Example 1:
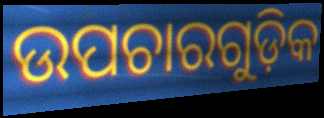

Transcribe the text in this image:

ଉପଚାରଗୁଡ଼ିକ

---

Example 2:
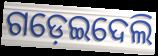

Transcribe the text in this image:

ଗଡ଼େଇଦେଲି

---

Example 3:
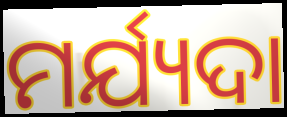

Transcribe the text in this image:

ମର୍ଯ୍ୟଦା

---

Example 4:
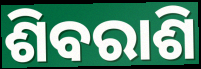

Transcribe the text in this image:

ଶିବରାଶି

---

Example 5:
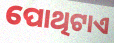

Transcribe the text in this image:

ପୋଥିଟାଏ